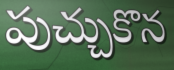
పుచ్చుకొన